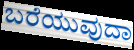
ಬರೆಯುವುದಾ